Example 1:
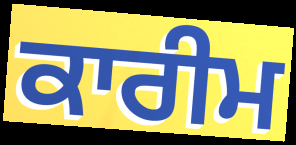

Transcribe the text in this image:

ਕਾਰੀਮ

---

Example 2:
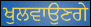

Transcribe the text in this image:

ਖੁਲਵਾਉਣਗੇ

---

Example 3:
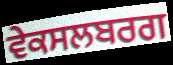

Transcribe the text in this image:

ਵੇਕਸਲਬਰਗ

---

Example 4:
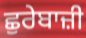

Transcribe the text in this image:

ਛੁਰੇਬਾਜ਼ੀ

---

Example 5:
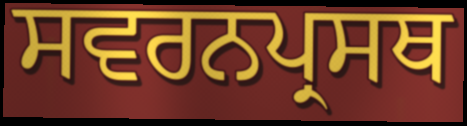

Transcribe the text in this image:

ਸਵਰਨਪ੍ਰਸਥ